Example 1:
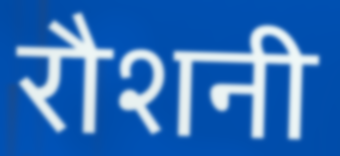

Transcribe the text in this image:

रौशनी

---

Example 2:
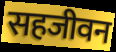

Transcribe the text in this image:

सहजीवन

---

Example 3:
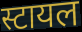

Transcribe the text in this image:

स्टायल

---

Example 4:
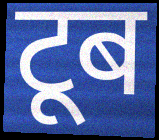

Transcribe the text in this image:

टूब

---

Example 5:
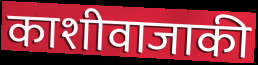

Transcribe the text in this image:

काशीवाजाकी